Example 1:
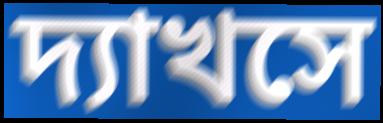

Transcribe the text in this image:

দ্যাখসে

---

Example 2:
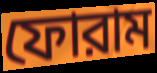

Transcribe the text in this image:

ফোরাম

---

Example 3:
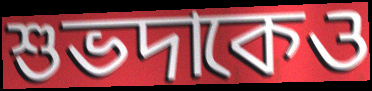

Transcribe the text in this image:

শুভদাকেও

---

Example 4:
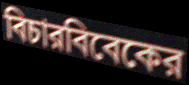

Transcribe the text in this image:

বিচারবিবেকের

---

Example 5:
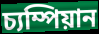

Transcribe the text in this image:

চ্যম্পিয়ান